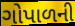
ગોપાળની